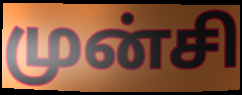
முன்சி